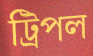
ট্রিপল